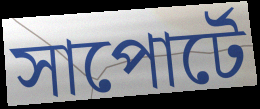
সাপোর্টে